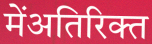
मेंअतिरिक्त